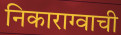
निकाराग्वाची